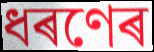
ধৰণেৰ